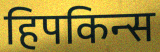
हिपकिन्स